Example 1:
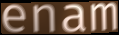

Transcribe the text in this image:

enam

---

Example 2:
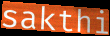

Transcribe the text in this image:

sakthi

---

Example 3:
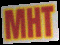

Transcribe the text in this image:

MHT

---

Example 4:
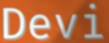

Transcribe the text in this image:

Devi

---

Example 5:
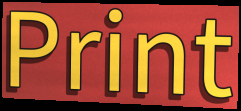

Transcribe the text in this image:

Print